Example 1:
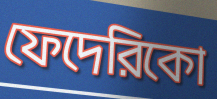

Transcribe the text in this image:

ফেদেরিকো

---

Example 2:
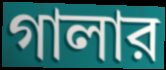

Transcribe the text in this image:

গালার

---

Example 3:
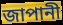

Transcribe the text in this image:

জাপানী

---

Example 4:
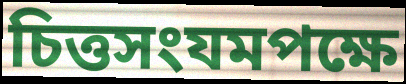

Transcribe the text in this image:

চিত্তসংযমপক্ষে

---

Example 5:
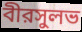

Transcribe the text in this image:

বীরসুলভ